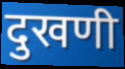
दुखणी